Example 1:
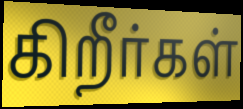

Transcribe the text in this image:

கிறீர்கள்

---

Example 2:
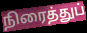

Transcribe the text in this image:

நிரைத்துப்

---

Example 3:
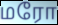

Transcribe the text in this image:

மரோ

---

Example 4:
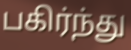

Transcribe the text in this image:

பகிர்ந்து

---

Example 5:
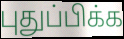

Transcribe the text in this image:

புதுப்பிக்க